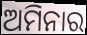
ଅମିନାର